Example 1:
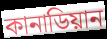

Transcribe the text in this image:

কানাডিয়ান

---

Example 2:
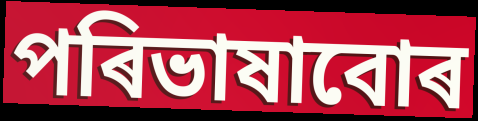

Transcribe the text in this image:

পৰিভাষাবোৰ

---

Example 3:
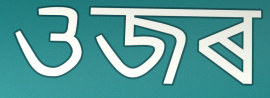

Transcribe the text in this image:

ওজৰ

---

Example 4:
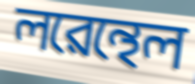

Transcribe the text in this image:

লৱেন্থেল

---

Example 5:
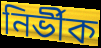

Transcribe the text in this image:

নিৰ্ভীক